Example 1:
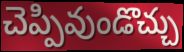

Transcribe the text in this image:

చెప్పివుండొచ్చు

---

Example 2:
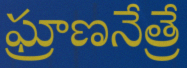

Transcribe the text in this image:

ఘ్రాణనేత్రే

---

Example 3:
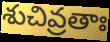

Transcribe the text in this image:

శుచివ్రతాః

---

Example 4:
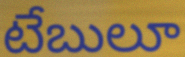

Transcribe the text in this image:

టేబులూ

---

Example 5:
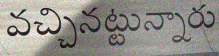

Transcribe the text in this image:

వచ్చినట్టున్నారు